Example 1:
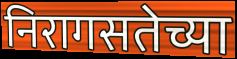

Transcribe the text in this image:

निरागसतेच्या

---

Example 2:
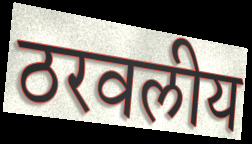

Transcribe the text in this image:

ठरवलीय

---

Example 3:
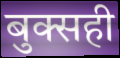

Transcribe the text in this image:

बुक्सही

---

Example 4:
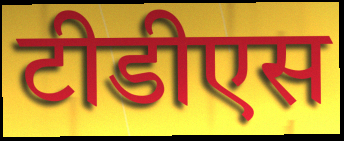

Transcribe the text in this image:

टीडीएस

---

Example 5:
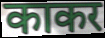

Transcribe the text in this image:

काकर